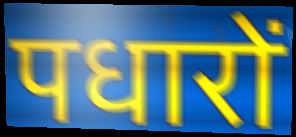
पधारों